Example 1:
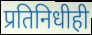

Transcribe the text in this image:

प्रतिनिधीही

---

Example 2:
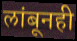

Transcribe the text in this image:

लांबूनही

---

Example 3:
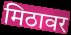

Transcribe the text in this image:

मिठावर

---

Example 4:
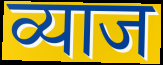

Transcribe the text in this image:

व्याज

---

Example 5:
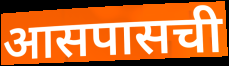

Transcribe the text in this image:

आसपासची